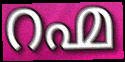
റഹ്മ